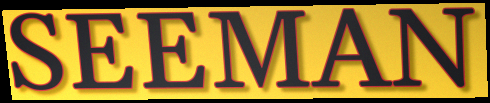
SEEMAN